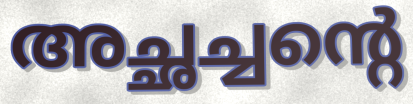
അച്ഛച്ചന്റെ